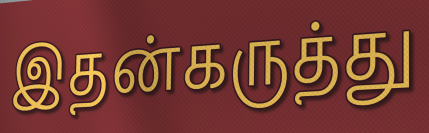
இதன்கருத்து